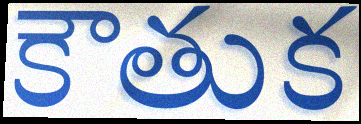
కౌతుక